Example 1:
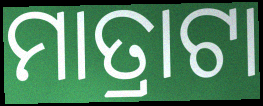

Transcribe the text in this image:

ମାତ୍ରାଟା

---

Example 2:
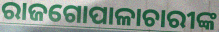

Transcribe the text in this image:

ରାଜଗୋପାଳାଚାରୀଙ୍କ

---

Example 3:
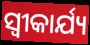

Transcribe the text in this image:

ସ୍ୱୀକାର୍ଯ୍ୟ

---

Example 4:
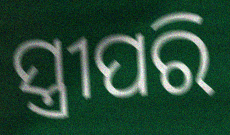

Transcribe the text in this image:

ସ୍ତ୍ରୀପରି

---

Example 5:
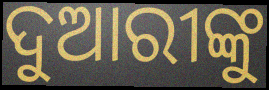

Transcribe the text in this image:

ଦୁଆରୀଙ୍କୁ